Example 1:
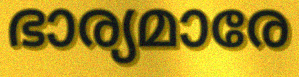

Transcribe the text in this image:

ഭാര്യമാരേ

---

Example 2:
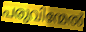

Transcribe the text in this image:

പരുവിന്മേൽ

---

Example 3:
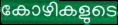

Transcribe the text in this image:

കോഴികളുടെ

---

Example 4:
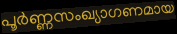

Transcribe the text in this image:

പൂർണ്ണസംഖ്യാഗണമായ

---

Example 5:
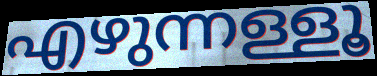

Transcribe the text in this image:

എഴുന്നള്ളൂ